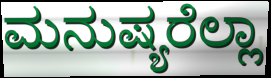
ಮನುಷ್ಯರೆಲ್ಲಾ